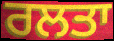
ਰਲਤਾ